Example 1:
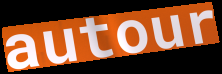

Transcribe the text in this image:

autour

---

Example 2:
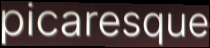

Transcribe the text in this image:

picaresque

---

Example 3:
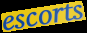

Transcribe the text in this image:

escorts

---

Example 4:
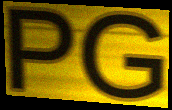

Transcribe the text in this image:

PG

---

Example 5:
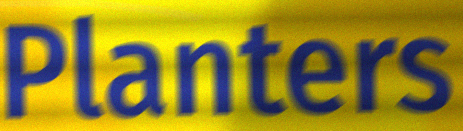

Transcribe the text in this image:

Planters